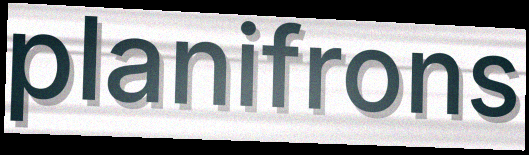
planifrons